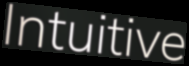
Intuitive